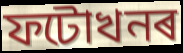
ফটোখনৰ